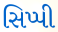
સિપ્પી